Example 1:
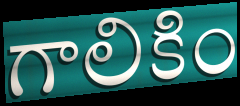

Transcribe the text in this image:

గాలికిం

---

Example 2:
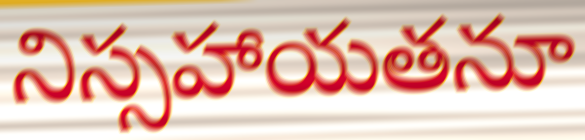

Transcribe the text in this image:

నిస్సహాయతనూ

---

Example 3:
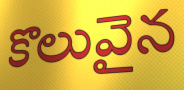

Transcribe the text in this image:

కొలువైన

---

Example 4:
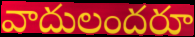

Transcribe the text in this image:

వాదులందరూ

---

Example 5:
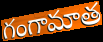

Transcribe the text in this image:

గంగామాత